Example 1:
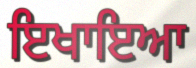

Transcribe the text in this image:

ਇਖਾਇਆ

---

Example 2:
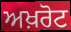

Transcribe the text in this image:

ਅਖ਼ਰੋਟ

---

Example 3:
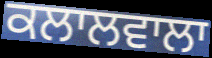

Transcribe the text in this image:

ਕਲਾਲਵਾਲਾ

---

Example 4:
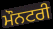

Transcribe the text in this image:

ਮੌਨਟਰੀ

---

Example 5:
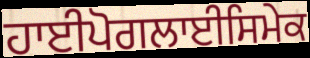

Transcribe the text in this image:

ਹਾਈਪੋਗਲਾਈਸਿਮੇਕ